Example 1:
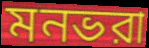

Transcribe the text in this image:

মনভরা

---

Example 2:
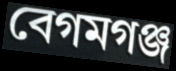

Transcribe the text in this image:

বেগমগঞ্জ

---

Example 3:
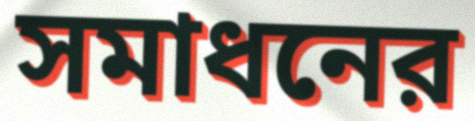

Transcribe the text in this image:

সমাধনের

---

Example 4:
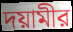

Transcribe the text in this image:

দয়ামীর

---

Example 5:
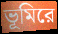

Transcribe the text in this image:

ভূমিরে